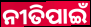
ନୀତିପାଇଁ